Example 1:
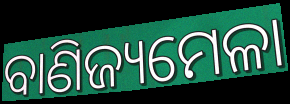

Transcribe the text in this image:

ବାଣିଜ୍ୟମେଳା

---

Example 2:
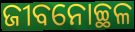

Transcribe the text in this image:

ଜୀବନୋଚ୍ଛଳ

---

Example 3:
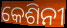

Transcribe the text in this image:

କେଶିନୀ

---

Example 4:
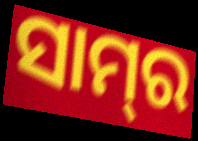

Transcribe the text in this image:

ସାମ୍‌ର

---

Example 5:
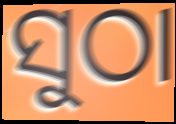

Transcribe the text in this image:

ସୁଠା